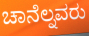
ಚಾನೆಲ್ನವರು